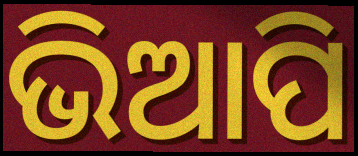
ଭିଆପି